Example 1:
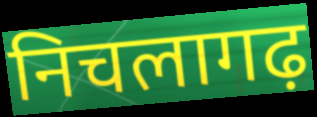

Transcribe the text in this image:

निचलागढ़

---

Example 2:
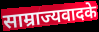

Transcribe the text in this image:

साम्राज्यवादके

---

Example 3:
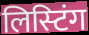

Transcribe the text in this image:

लिस्‍टिंग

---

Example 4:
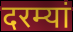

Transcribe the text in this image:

दरम्यां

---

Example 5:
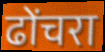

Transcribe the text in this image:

ढोंचरा